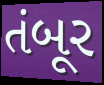
તંબૂર